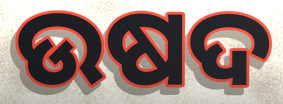
ଉଷଦ